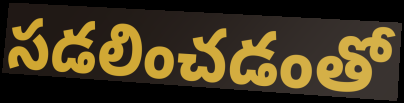
సడలించడంతో